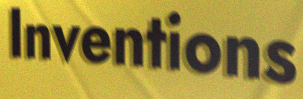
Inventions